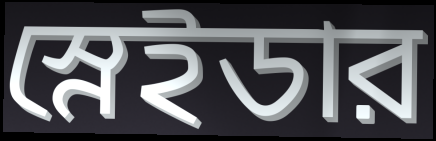
স্নেইডার